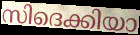
സിദെക്കിയാ